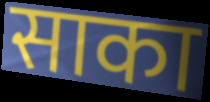
साका